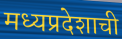
मध्यप्रदेशाची